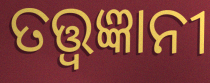
ତତ୍ତ୍ଵଜ୍ଞାନୀ